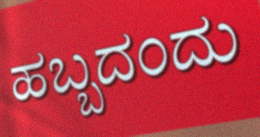
ಹಬ್ಬದಂದು